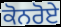
ਕੋਨਰੋਏ